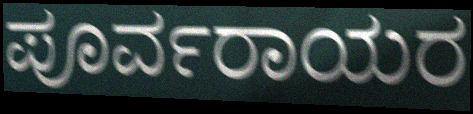
ಪೂರ್ವರಾಯರ